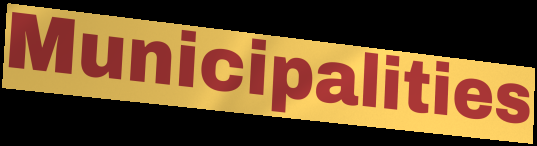
Municipalities